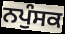
ਨਪੁੰਸਕ